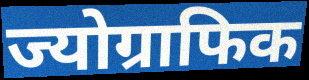
ज्योग्राफिक